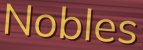
Nobles